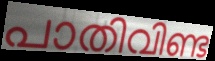
പാതിവിണ്ട